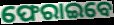
ଫେରାଇବେ